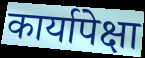
कार्यापेक्षा